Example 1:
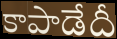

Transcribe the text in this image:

కాపాడేదీ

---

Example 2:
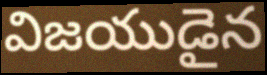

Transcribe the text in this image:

విజయుడైన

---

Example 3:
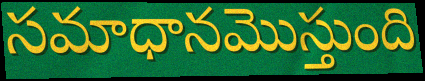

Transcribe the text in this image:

సమాధానమొస్తుంది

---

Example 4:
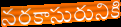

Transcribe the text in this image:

నరకాసురునికి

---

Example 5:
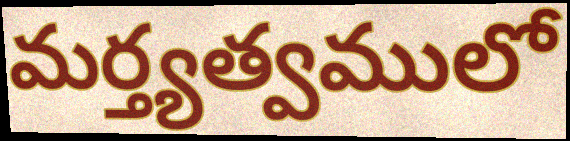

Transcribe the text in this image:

మర్త్యత్వములో